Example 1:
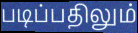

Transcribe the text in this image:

படிப்பதிலும்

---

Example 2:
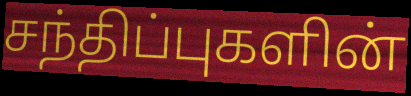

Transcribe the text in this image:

சந்திப்புகளின்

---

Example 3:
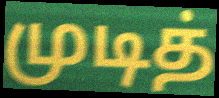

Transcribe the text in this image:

முடித்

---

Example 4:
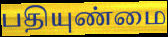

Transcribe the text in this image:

பதியுண்மை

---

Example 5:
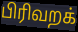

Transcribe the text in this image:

பிரிவறக்